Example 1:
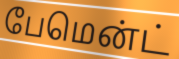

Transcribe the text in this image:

பேமென்ட்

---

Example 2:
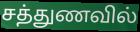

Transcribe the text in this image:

சத்துணவில்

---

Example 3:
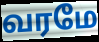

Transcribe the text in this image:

வரமே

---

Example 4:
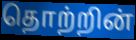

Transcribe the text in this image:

தொற்றின்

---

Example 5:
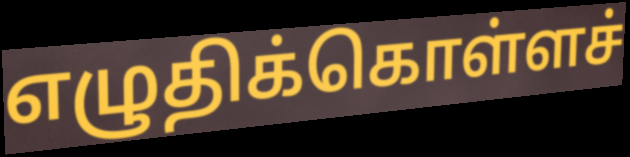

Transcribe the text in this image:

எழுதிக்கொள்ளச்